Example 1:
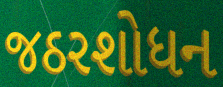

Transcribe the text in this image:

જઠરશોધન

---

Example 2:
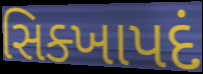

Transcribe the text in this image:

સિક્ખાપદં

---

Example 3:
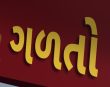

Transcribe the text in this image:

ગળતો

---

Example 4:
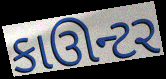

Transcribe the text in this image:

કાઊન્ટર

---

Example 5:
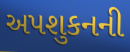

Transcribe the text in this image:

અપશુકનની